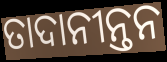
ତାଦାନୀନ୍ତନ